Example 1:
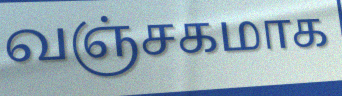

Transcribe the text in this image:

வஞ்சகமாக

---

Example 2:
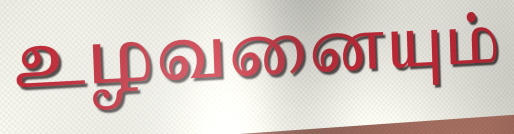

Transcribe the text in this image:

உழவனையும்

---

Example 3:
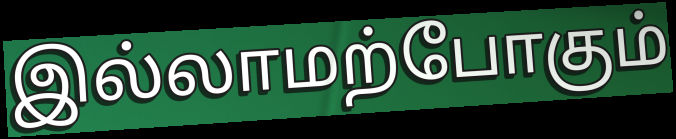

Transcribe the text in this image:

இல்லாமற்போகும்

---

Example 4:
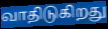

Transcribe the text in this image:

வாதிடுகிறது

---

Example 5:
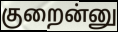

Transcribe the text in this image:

குறைன்னு